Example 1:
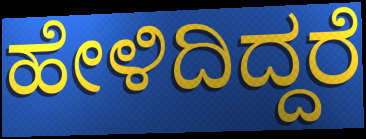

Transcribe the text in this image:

ಹೇಳಿದಿದ್ದರೆ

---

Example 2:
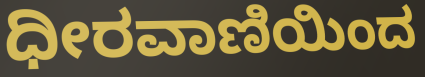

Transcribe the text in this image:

ಧೀರವಾಣಿಯಿಂದ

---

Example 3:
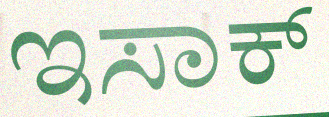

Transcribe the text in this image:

ಇಸಾಕ್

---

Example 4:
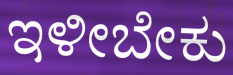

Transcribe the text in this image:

ಇಳೀಬೇಕು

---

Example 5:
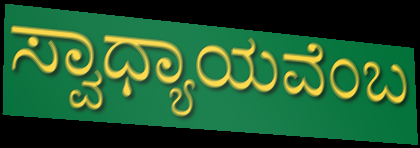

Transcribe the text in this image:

ಸ್ವಾಧ್ಯಾಯವೆಂಬ